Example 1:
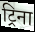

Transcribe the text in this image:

ट्रिना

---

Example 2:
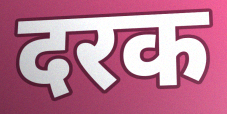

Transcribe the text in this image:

दरक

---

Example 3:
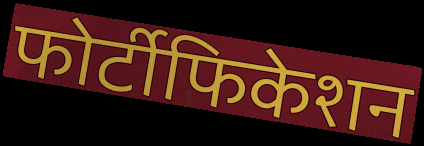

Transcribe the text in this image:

फोर्टीफिकेशन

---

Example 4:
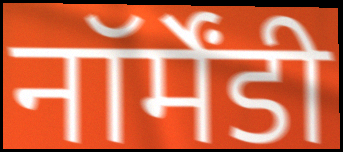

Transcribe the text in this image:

नॉर्मेंडी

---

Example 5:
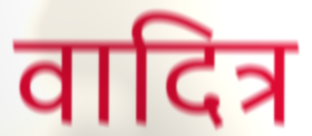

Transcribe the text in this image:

वादित्र